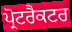
ਪ੍ਰੋਟਰੈਕਟਰ